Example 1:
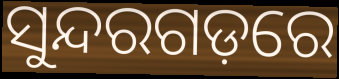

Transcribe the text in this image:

ସୁନ୍ଦରଗଡ଼ରେ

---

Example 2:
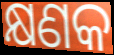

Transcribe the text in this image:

କ୍ଷଣକ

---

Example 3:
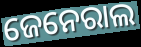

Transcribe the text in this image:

ଜେନେରାଲ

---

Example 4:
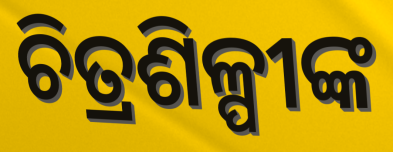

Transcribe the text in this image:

ଚିତ୍ରଶିଳ୍ପୀଙ୍କ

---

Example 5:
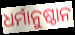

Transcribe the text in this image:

ଧର୍ମାନୁଷ୍ଠାନ